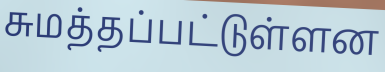
சுமத்தப்பட்டுள்ளன